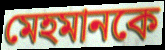
মেহমানকে